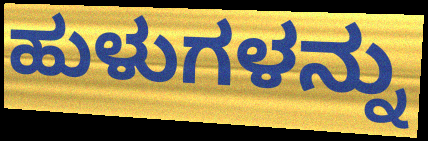
ಹುಳುಗಳನ್ನು